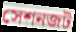
সেশনজট